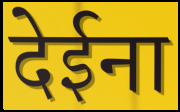
देईना